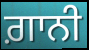
ਗ਼ਾਨੀ